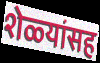
शेळ्यांसह